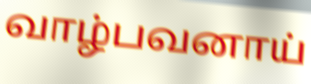
வாழ்பவனாய்